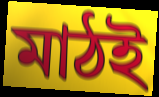
মাঠই